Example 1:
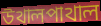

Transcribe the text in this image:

উথালপাথাল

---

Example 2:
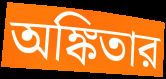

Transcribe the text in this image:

অঙ্কিতার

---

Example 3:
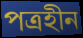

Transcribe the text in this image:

পত্রহীন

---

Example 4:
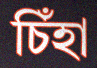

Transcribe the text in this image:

চিঁহা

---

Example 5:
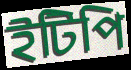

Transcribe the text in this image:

ইটিপি